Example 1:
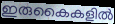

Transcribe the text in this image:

ഇരുകൈകളിൽ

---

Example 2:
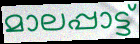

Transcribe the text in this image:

മാലപ്പാട്ട്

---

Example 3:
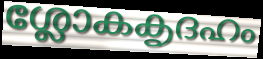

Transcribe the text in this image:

ശ്ലോകകൃദഹം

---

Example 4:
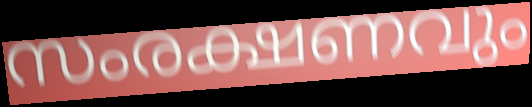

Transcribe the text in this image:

സംരക്ഷണവും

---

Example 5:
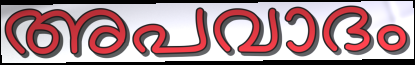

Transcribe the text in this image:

അപവാദം